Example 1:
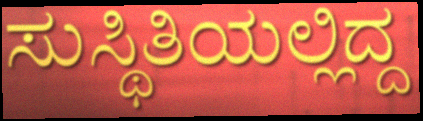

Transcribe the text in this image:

ಸುಸ್ಥಿತಿಯಲ್ಲಿದ್ದ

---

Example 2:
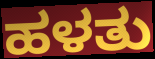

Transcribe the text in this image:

ಹಳತು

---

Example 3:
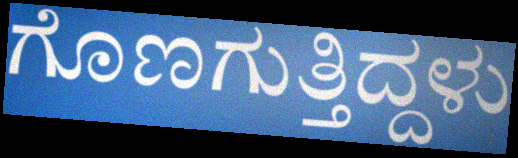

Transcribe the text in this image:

ಗೊಣಗುತ್ತಿದ್ದಳು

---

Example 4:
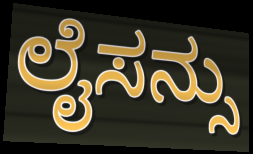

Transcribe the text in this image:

ಲೈಸನ್ಸು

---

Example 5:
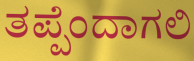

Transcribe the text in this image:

ತಪ್ಪೆಂದಾಗಲಿ